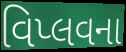
વિપ્લવના